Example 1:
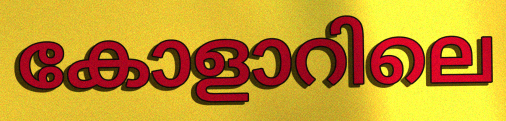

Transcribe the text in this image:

കോളാറിലെ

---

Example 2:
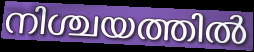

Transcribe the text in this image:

നിശ്ചയത്തിൽ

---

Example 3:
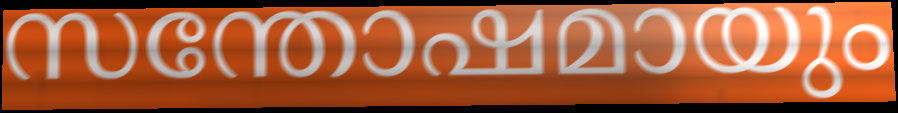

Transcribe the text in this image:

സന്തോഷമായും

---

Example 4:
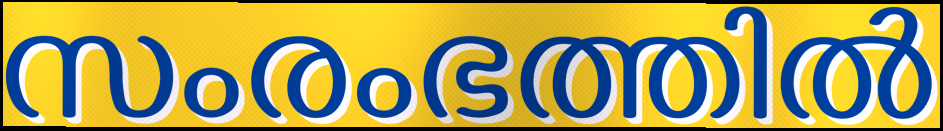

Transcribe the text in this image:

സംരംഭത്തിൽ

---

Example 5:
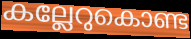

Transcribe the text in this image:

കല്ലേറുകൊണ്ട